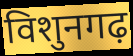
विशुनगढ़